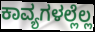
ಕಾವ್ಯಗಳಲ್ಲೆಲ್ಲ